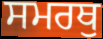
ਸਮਰਥੁ